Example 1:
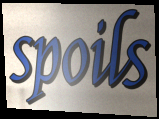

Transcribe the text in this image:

spoils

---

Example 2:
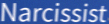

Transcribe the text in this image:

Narcissist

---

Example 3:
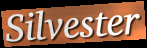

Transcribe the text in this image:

Silvester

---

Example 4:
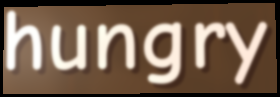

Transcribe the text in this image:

hungry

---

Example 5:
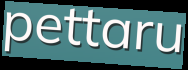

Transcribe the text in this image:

pettaru